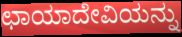
ಛಾಯಾದೇವಿಯನ್ನು